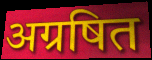
अग्रषित